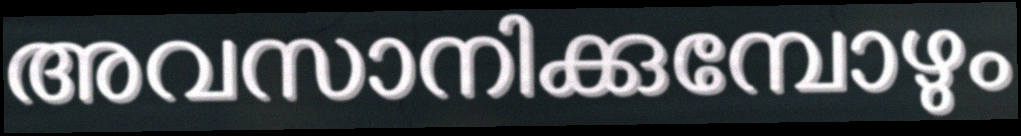
അവസാനിക്കുമ്പോഴും